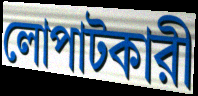
লোপাটকারী